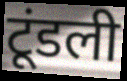
टूंडली